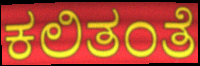
ಕಲಿತಂತೆ